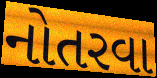
નોતરવા